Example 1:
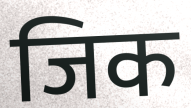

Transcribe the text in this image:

जिक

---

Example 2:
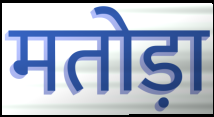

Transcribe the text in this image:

मतोड़ा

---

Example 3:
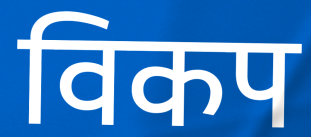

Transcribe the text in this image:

विकप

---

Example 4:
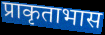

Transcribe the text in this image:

प्राकृताभास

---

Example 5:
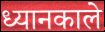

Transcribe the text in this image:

ध्यानकाले